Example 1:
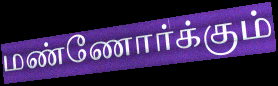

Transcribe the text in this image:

மண்ணோர்க்கும்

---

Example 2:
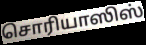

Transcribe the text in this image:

சொரியாஸிஸ்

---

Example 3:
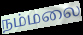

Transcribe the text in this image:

நம்மலை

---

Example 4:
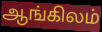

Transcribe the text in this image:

ஆங்கிலம்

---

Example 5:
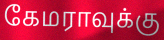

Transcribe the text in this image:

கேமராவுக்கு